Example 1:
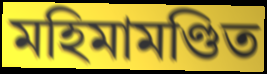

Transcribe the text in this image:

মহিমামণ্ডিত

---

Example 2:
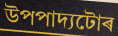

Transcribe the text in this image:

উপপাদ্যটোৰ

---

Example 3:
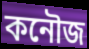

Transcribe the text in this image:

কনৌজ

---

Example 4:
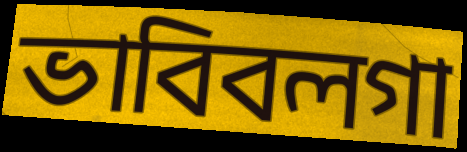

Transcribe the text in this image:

ভাবিবলগা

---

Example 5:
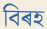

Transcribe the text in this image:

বিৰহ